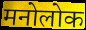
मनोलोक